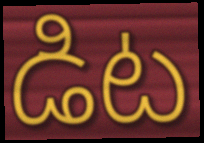
డిట